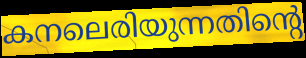
കനലെരിയുന്നതിന്റെ